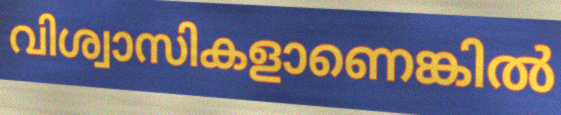
വിശ്വാസികളാണെങ്കിൽ